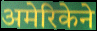
अमेरिकेने